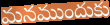
మనముందుకు